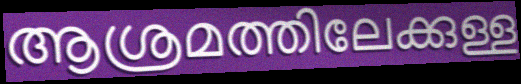
ആശ്രമത്തിലേക്കുള്ള